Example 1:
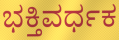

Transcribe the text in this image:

ಭಕ್ತಿವರ್ಧಕ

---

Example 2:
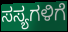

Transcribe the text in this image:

ಸಸ್ಯಗಳಿಗೆ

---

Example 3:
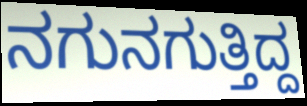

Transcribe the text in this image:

ನಗುನಗುತ್ತಿದ್ದ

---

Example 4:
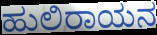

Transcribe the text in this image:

ಹುಲಿರಾಯನ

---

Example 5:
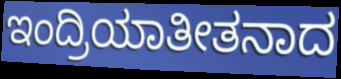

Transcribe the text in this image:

ಇಂದ್ರಿಯಾತೀತನಾದ